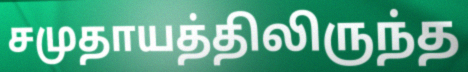
சமுதாயத்திலிருந்த